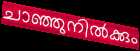
ചാഞ്ഞുനിൽക്കും